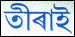
তীৰাই